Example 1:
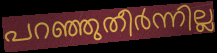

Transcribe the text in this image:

പറഞ്ഞുതീർന്നില്ല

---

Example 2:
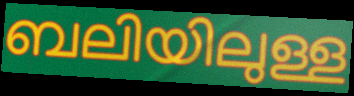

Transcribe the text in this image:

ബലിയിലുള്ള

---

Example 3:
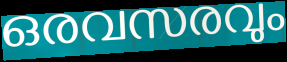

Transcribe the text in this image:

ഒരവസരവും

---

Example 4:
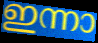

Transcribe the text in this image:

ഇന്നാ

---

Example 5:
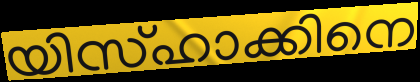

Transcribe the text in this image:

യിസ്ഹാക്കിനെ